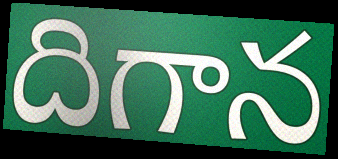
దిగాన